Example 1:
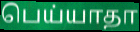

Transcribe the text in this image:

பெய்யாதா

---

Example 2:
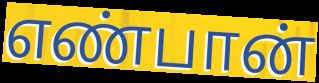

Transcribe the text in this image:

எண்பான்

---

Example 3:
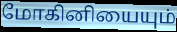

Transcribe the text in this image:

மோகினியையும்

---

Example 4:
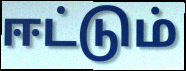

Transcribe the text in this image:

ஈட்டும்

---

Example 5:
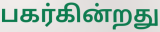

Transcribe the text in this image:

பகர்கின்றது